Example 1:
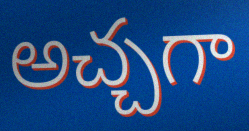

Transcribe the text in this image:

అచ్చగా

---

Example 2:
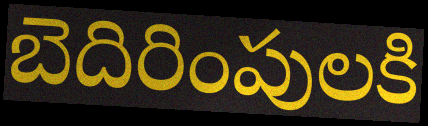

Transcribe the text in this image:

బెదిరింపులకి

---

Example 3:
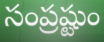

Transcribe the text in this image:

సంప్రష్టుం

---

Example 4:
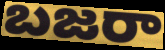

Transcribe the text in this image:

బజరా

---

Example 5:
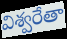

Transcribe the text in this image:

విశ్వరేతా